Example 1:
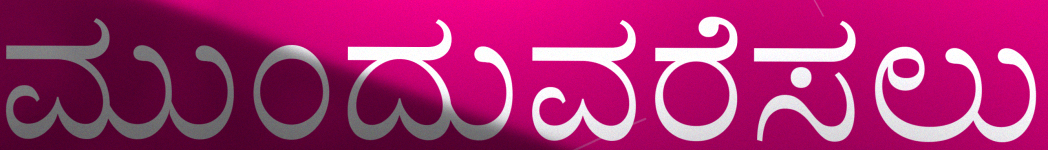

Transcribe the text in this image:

ಮುಂದುವರೆಸಲು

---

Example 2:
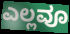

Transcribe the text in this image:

ಎಲ್ಲವೂ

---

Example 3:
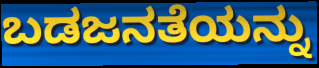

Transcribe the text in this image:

ಬಡಜನತೆಯನ್ನು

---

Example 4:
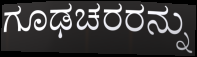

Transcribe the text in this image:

ಗೂಢಚರರನ್ನು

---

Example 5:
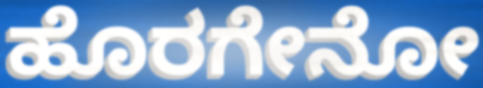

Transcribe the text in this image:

ಹೊರಗೇನೋ